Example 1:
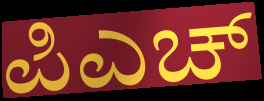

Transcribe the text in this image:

ಪಿಎಚ್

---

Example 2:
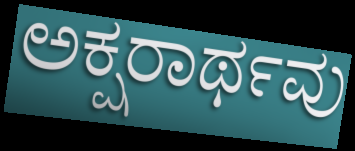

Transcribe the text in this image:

ಅಕ್ಷರಾರ್ಥವು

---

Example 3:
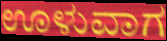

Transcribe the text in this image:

ಊಳುವಾಗ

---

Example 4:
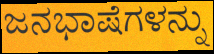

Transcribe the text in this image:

ಜನಭಾಷೆಗಳನ್ನು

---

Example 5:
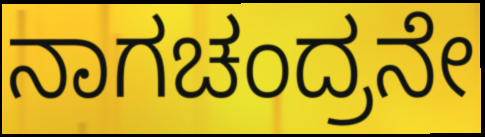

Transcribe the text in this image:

ನಾಗಚಂದ್ರನೇ